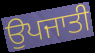
ਉਪਜਾਤੀ